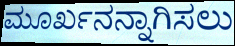
ಮೂರ್ಖನನ್ನಾಗಿಸಲು